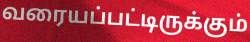
வரையப்பட்டிருக்கும்